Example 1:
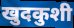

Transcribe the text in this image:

खुदकुशी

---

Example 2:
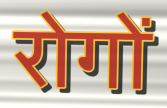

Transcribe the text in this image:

रोगों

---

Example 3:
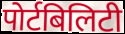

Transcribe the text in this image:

पोर्टबिलिटी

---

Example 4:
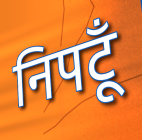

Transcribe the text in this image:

निपटूँ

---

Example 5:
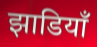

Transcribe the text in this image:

झाडियाँ